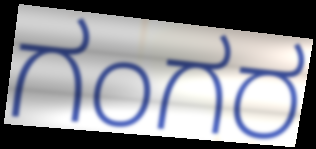
ಗಂಗರ